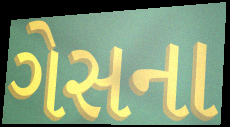
ગેસના